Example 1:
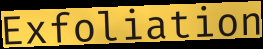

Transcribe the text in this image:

Exfoliation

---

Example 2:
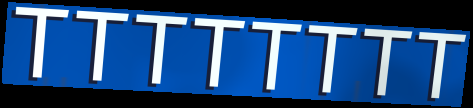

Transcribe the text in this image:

TTTTTTTT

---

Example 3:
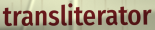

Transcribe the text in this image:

transliterator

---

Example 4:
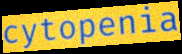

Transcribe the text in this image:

cytopenia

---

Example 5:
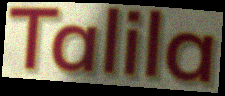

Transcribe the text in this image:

Talila